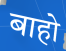
बाहो